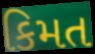
કિમત